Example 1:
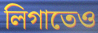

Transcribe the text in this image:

লিগাতেও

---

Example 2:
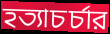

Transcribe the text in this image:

হত্যাচর্চার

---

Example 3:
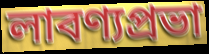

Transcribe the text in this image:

লাবণ্যপ্রভা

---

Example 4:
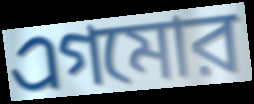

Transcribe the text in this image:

এগমোর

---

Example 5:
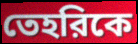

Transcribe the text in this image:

তেহরিকে